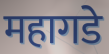
महागडे